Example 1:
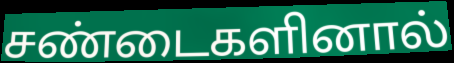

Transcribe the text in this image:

சண்டைகளினால்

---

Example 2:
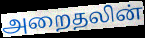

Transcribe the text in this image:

அறைதலின்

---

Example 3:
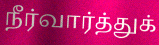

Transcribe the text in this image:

நீர்வார்த்துக்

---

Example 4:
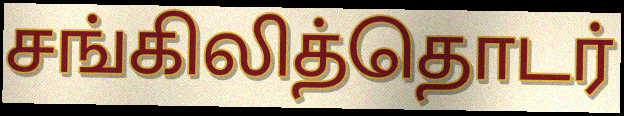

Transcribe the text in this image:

சங்கிலித்தொடர்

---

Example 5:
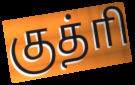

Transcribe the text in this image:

குத்ரி